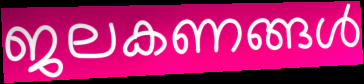
ജലകണങ്ങൾ